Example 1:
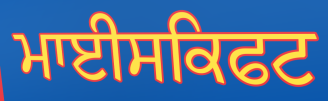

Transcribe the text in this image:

ਮਾਈਸਕਿਫਟ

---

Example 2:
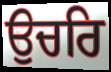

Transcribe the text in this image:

ਉਚਰਿ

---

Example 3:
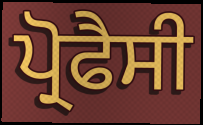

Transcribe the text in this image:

ਪ੍ਰੋਫੈਸੀ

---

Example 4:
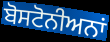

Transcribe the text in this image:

ਬੋਸਟੋਨੀਅਨਾਂ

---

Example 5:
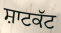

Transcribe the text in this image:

ਸ਼ਾਟਕੱਟ